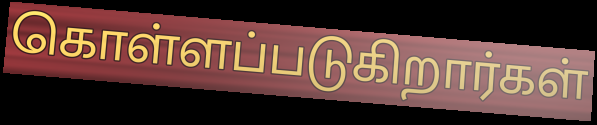
கொள்ளப்படுகிறார்கள்